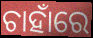
ଚାହାଁରେ